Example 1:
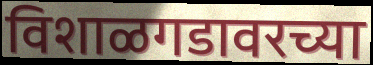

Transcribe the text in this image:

विशाळगडावरच्या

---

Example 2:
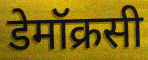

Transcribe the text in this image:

डेमॉक्रसी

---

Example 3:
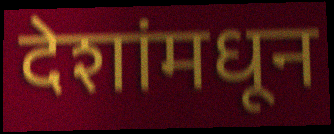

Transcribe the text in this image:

देशांमधून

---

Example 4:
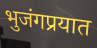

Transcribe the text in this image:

भुजंगप्रयात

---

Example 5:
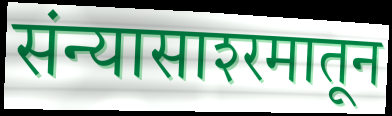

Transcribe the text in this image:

संन्यासाश्रमातून